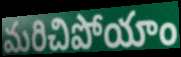
మరిచిపోయాం